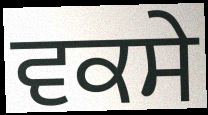
ਵਕਸੇ